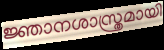
ജ്ഞാനശാസ്ത്രമായി